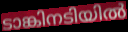
ടാങ്കിനടിയിൽ